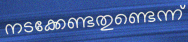
നടക്കേണ്ടതുണ്ടെന്ന്